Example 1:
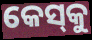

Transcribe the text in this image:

କେସ୍‌କୁ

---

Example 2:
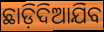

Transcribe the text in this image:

ଛାଡ଼ିଦିଆଯିବ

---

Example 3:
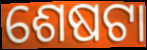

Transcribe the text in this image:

ଶେଷଟା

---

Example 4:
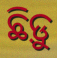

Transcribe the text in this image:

ଛିଡ଼ୁ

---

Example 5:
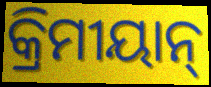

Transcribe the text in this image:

କ୍ରିମୀୟାନ୍